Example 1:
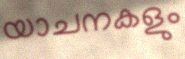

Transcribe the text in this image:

യാചനകളും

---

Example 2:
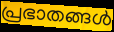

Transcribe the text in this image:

പ്രഭാതങ്ങൾ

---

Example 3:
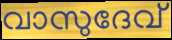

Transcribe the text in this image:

വാസുദേവ്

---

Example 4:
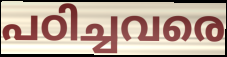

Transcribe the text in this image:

പഠിച്ചവരെ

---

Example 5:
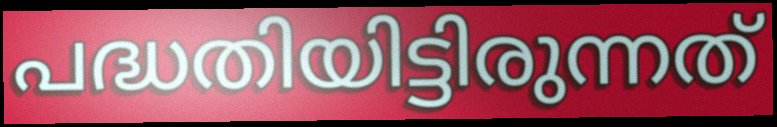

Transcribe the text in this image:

പദ്ധതിയിട്ടിരുന്നത്